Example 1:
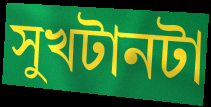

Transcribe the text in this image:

সুখটানটা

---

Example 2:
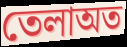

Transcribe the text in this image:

তেলাঅত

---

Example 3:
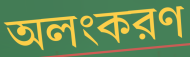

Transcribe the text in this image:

অলংকরণ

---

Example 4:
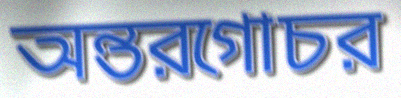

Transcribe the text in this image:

অন্তরগোচর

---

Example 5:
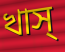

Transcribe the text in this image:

খাস্